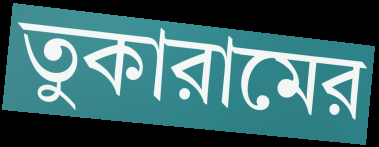
তুকারামের